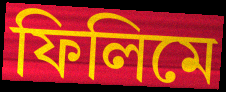
ফিলিমে